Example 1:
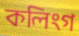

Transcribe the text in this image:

কলিংগ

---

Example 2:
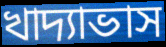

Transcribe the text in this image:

খাদ্যাভাস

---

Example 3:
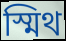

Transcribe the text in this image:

স্মিথ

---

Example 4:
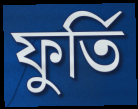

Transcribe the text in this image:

ফুৰ্তি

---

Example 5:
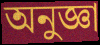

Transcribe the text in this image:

অনুজ্ঞা